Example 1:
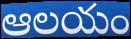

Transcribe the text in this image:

ఆలయం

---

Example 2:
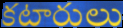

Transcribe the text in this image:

కటారులు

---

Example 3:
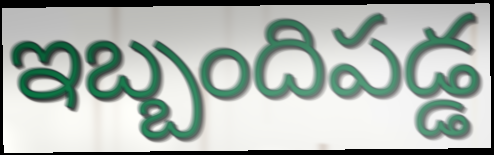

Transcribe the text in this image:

ఇబ్బందిపడ్డ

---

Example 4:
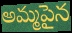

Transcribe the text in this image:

అమ్మపైన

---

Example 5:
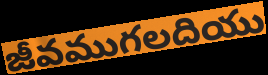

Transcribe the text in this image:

జీవముగలదియు